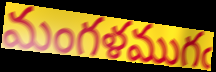
మంగళముగఁ